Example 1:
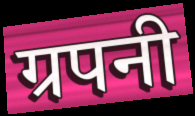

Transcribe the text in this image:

ग्रपनी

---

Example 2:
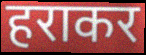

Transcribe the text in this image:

हराकर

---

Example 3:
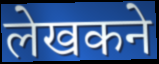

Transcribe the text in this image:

लेखकने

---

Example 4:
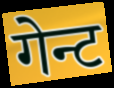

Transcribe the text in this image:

गेन्ट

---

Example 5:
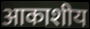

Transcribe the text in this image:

आकाशीय